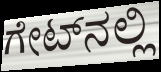
ಗೇಟ್‌ನಲ್ಲಿ